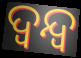
ଦ୍ବନ୍ଦ୍ବ